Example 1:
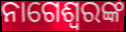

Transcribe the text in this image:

ନାଗେଶ୍ୱରଙ୍କ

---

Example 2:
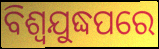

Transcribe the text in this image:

ବିଶ୍ୱଯୁଦ୍ଧପରେ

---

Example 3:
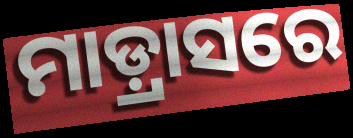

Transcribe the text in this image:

ମାଡ଼୍ରାସରେ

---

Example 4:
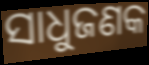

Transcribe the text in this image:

ସାଧୁଜଣକ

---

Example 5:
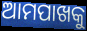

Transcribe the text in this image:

ଆମପାଖକୁ